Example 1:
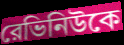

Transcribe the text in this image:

রেভিনিউকে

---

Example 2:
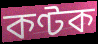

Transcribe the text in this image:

কণ্টক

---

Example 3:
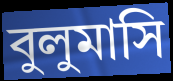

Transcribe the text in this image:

বুলুমাসি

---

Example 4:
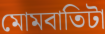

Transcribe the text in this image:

মোমবাতিটা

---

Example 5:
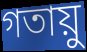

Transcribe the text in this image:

গতায়ু